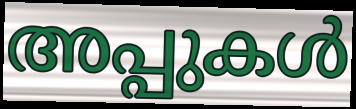
അപ്പുകൾ